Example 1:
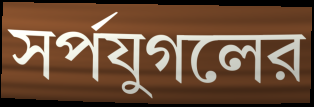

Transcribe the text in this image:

সর্পযুগলের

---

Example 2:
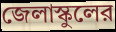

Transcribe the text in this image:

জেলাস্কুলের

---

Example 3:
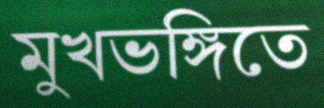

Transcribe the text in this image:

মুখভঙ্গিতে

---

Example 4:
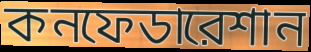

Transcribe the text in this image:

কনফেডারেশান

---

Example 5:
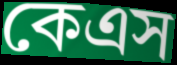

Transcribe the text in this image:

কেএস